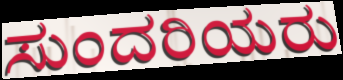
ಸುಂದರಿಯರು